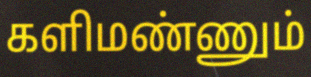
களிமண்ணும்